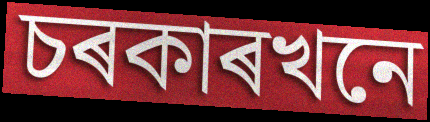
চৰকাৰখনে